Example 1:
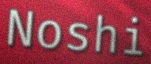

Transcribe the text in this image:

Noshi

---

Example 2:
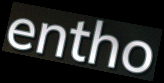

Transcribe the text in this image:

entho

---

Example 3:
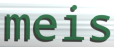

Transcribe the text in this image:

meis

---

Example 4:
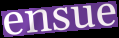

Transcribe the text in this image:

ensue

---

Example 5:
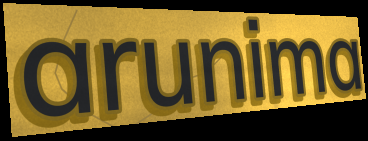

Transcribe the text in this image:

arunima